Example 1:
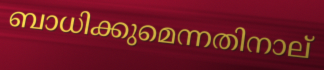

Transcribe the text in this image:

ബാധിക്കുമെന്നതിനാല്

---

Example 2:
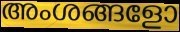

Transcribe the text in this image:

അംശങ്ങളോ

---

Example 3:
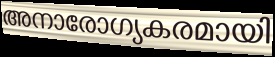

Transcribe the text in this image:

അനാരോഗ്യകരമായി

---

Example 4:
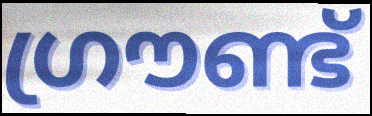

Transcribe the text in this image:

ഗ്രൗണ്ട്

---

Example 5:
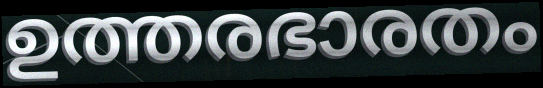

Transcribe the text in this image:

ഉത്തരഭാരതം